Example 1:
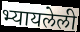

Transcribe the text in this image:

भ्यायलेली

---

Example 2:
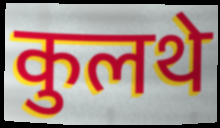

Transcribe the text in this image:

कुलथे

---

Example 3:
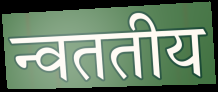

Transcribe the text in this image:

न्वततीय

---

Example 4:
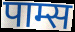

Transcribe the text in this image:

पाम्स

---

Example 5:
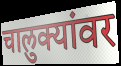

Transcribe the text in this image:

चालुक्यांवर